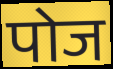
पोज